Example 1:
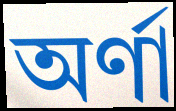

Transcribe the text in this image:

অর্ণা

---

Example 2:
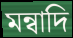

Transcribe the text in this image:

মন্বাদি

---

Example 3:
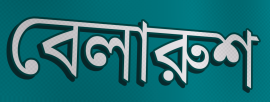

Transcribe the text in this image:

বেলারুশ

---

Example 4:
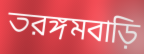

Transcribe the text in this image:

তরঙ্গমবাড়ি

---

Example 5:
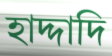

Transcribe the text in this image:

হাদ্দাদি